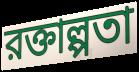
রক্তাল্পতা